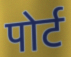
पोर्ट